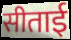
सीताई